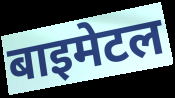
बाइमेटल